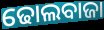
ଢୋଲବାଜା